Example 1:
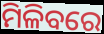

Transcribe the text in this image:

ମିଳିବରେ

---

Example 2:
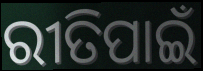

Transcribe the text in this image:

ରୀତିପାଇଁ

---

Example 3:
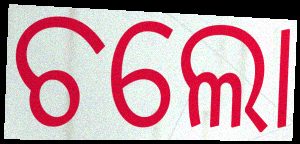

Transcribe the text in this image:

ଚଲୋ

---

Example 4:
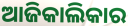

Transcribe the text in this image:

ଆଜିକାଲିକାର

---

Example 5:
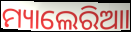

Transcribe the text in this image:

ମ୍ୟାଲେରିଆା